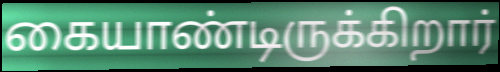
கையாண்டிருக்கிறார்